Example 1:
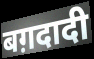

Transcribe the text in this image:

बग़दादी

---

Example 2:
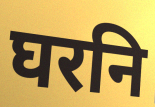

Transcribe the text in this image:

घरनि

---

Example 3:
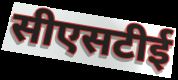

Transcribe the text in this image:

सीएसटीई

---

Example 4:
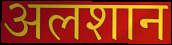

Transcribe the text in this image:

अलशान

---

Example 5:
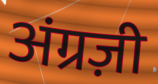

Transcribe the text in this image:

अंग्रज़ी